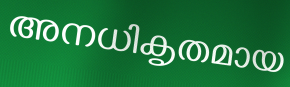
അനധികൃതമായ